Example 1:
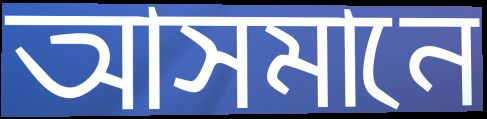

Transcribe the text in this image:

আসমানে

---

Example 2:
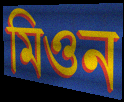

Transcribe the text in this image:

মিওন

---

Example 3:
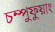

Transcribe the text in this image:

চম্পুফুয়াং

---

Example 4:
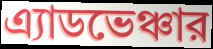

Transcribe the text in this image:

এ্যাডভেঞ্চার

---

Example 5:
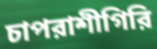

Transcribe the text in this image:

চাপরাশীগিরি